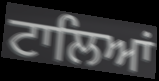
ਟਾਲਿਆਂ